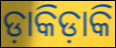
ଡ଼ାକିଡ଼ାକି